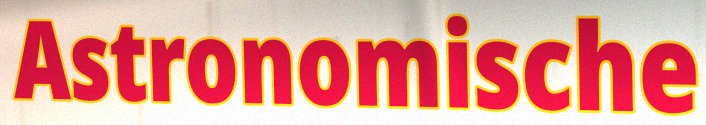
Astronomische